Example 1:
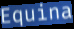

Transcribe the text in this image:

Equina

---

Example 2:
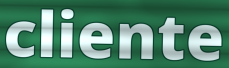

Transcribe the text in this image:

cliente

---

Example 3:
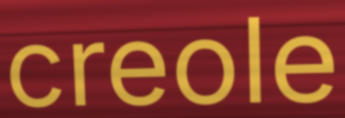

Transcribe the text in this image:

creole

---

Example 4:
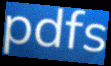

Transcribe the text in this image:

pdfs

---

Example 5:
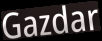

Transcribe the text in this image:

Gazdar